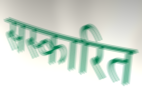
सस्कारित